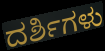
ದರ್ಶಿಗಳು